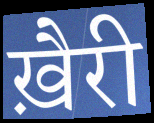
ख़ैरी